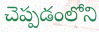
చెప్పడంలోని